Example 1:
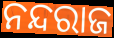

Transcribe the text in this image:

ନନ୍ଦରାଜ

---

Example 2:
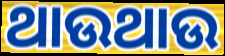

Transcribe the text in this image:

ଥାଉଥାଉ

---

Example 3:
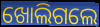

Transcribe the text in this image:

ଖୋଲିଗଲେ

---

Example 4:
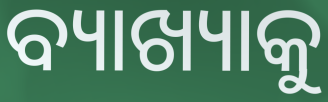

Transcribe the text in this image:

ବ୍ୟାଖ୍ୟାକୁ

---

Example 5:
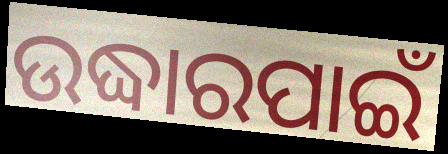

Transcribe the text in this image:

ଉଦ୍ଧାରପାଇଁ